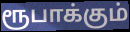
ரூபாக்கும்